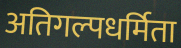
अतिगल्पधर्मिता